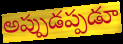
అప్పుడప్పడూ